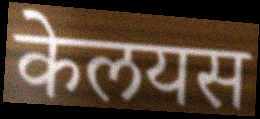
केलयस